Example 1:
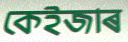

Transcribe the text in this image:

কেইজাৰ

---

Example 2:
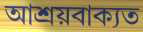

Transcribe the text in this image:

আশ্ৰয়বাক্য়ত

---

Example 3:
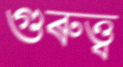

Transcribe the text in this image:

গুৰুত্ত্ব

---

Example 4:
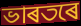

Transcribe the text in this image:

ভাৰতৰে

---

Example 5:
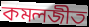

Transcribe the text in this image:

কমলজীত